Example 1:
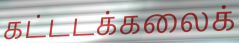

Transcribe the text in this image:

கட்டடக்கலைக்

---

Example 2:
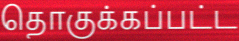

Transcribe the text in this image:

தொகுக்கப்பட்ட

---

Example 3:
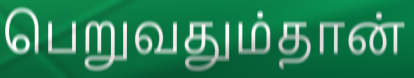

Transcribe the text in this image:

பெறுவதும்தான்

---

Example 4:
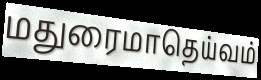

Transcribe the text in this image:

மதுரைமாதெய்வம்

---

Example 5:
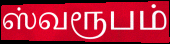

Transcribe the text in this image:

ஸ்வரூபம்